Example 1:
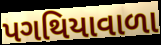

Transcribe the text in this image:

પગથિયાવાળા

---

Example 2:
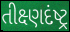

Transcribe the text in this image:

તીક્ષ્ણદંષ્ટ્ર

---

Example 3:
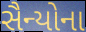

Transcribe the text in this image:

સૈન્યોના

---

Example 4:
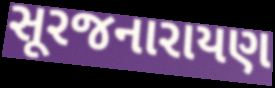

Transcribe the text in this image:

સૂરજનારાયણ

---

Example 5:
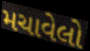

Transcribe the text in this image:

મચાવેલો